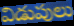
విడుపులు